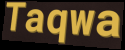
Taqwa